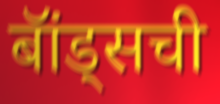
बॉंड्सची